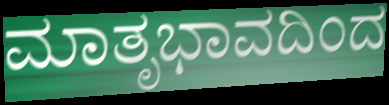
ಮಾತೃಭಾವದಿಂದ